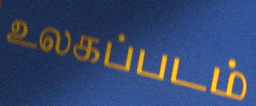
உலகப்படம்